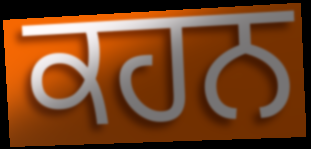
ਕਹਨ